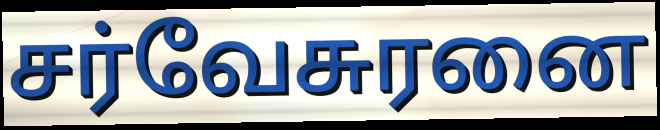
சர்வேசுரனை